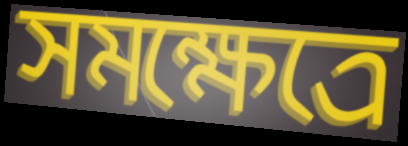
সমক্ষেত্রে